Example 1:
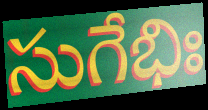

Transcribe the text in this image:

సుగేభిః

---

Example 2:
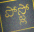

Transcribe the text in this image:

పోస్ట్లో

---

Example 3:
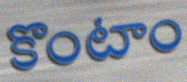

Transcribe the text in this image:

కొంటాం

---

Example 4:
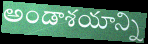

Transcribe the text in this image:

అండాశయాన్ని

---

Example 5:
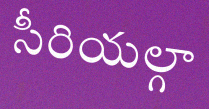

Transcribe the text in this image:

సీరియల్గా